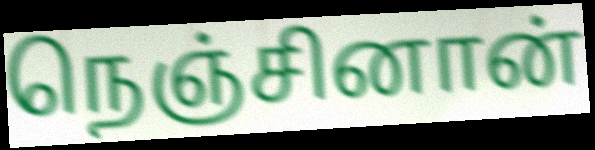
நெஞ்சினான்